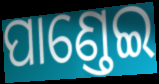
ପାଣ୍ଡେଇ